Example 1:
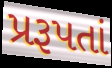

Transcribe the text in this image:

પ્રરૂપતાં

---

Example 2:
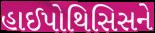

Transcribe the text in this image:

હાઈપોથિસિસને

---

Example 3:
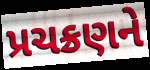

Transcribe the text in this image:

પ્રચક્રણને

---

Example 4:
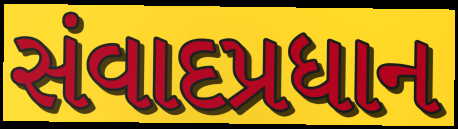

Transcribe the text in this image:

સંવાદપ્રધાન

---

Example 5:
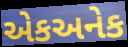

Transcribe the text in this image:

એકઅનેક